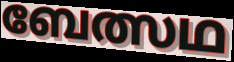
ബേത്സഥ